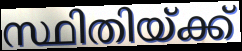
സ്ഥിതിയ്ക്ക്